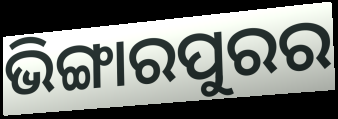
ଭିଙ୍ଗାରପୁରର